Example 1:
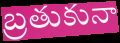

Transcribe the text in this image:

బ్రతుకునా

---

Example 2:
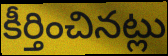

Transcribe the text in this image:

కీర్తించినట్లు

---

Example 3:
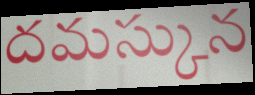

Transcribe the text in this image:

దమస్కున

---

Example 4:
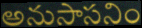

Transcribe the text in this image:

అనుసాసనిం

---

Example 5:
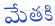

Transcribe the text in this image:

మేతకి